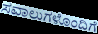
ಸವಾಲುಗಳೊಂದಿಗೆ